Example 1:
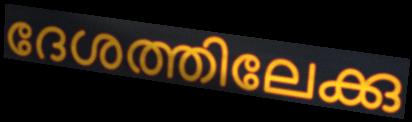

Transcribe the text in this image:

ദേശത്തിലേക്കു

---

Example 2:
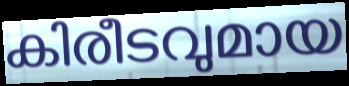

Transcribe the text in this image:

കിരീടവുമായ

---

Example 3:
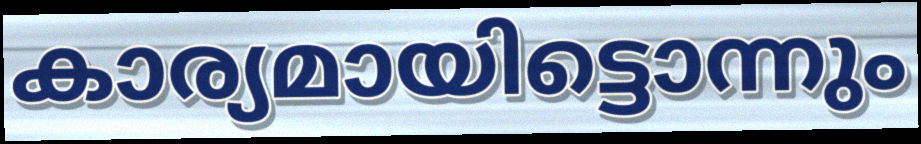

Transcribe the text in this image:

കാര്യമായിട്ടൊന്നും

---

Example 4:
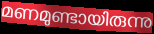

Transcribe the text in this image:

മണമുണ്ടായിരുന്നു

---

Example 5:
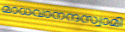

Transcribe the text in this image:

മാധവാനന്ദസ്വാമി